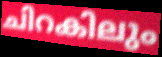
ചിറകിലും